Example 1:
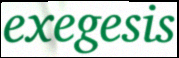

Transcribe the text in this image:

exegesis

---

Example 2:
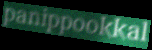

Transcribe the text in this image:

panippookkal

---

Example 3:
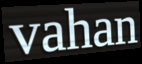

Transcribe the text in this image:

vahan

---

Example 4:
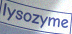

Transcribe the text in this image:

lysozyme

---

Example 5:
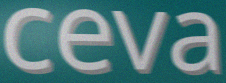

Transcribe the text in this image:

ceva